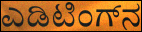
ಎಡಿಟಿಂಗ್‌ನ